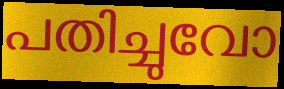
പതിച്ചുവോ